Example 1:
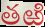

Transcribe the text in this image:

తఱి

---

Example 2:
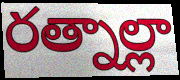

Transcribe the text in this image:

రత్నాల్లా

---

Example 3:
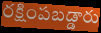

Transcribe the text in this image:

రక్షింపబడ్డారు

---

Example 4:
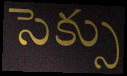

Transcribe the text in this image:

సెక్సు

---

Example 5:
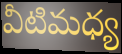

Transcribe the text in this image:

వీటిమధ్య